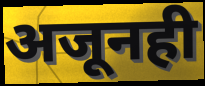
अजूनही